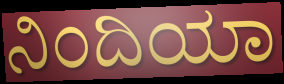
ನಿಂದಿಯಾ